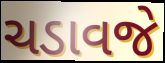
ચડાવજે